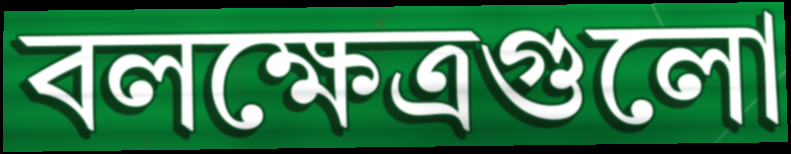
বলক্ষেত্রগুলো